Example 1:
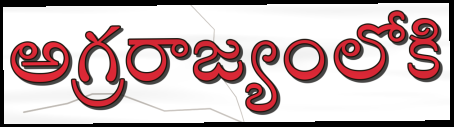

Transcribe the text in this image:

అగ్రరాజ్యంలోకి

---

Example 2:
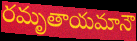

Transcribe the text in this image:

రమృతాయమానౌ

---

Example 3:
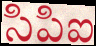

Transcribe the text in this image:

సిపిఐ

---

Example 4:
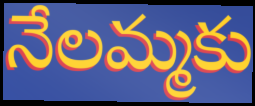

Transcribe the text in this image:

నేలమ్మకు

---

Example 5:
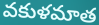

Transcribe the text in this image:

వకుళమాత